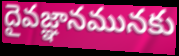
దైవజ్ఞానమునకు